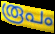
രൂപം